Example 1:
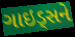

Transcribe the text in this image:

ગાઇડ્સને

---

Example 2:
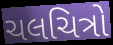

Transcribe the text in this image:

ચલચિત્રો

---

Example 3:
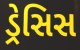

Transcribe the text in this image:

ડ્રેસિસ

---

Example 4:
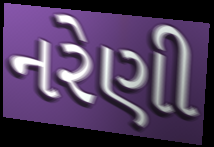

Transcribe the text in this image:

નરેણી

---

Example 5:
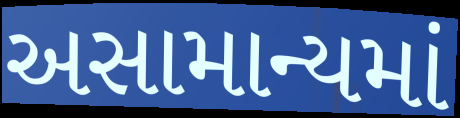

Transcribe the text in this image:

અસામાન્યમાં